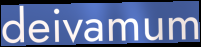
deivamum